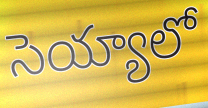
సెయ్యాలో